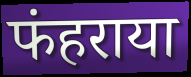
फंहराया